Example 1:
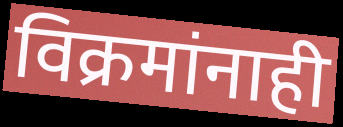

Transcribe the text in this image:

विक्रमांनाही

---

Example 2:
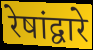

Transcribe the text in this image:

रेषांद्वारे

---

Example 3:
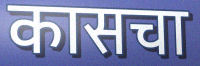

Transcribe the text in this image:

कासचा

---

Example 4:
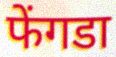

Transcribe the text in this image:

फेंगडा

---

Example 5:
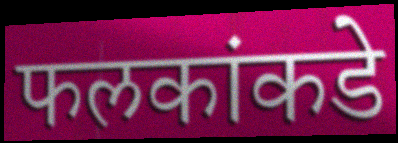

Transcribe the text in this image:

फलकांकडे